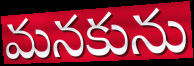
మనకును